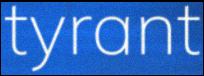
tyrant